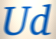
Ud